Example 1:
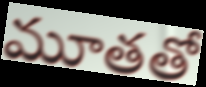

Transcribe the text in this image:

మూతతో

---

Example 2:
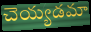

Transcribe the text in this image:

చెయ్యడమా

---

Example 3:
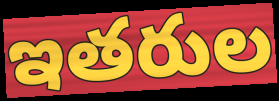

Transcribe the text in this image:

ఇతరుల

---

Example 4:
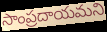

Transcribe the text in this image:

సాంప్రదాయమని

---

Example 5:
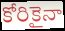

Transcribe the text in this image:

కోరికైనా